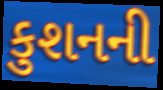
કુશનની